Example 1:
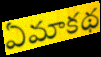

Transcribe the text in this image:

ఏమాకథ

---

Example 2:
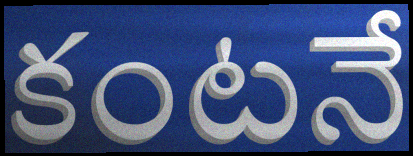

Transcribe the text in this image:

కంటనే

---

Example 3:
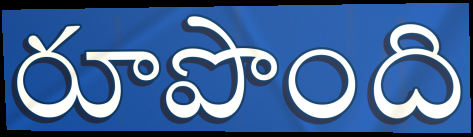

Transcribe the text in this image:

రూపొంది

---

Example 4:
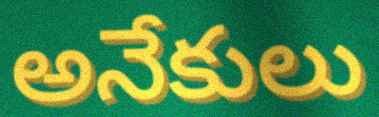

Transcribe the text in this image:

అనేకులు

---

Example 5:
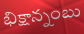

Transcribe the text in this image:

భిక్షాన్నంబు